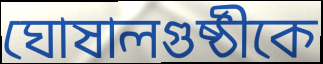
ঘোষালগুষ্ঠীকে